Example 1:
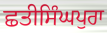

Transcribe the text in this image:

ਛਤੀਸਿੰਘਪੁਰਾ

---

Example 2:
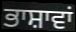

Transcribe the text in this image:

ਭਾਸ਼ਾਵਾਂ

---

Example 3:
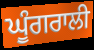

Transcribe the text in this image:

ਘੂੰਗਰਾਲੀ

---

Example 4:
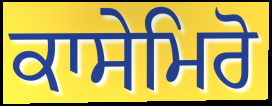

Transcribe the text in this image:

ਕਾਸੇਮਿਰੋ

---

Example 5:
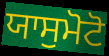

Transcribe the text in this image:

ਯਾਸੁਮੋਟੋ